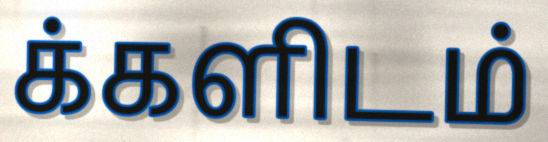
க்களிடம்